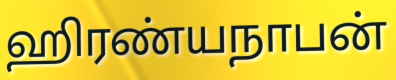
ஹிரண்யநாபன்